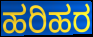
ಹರಿಹರ